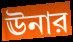
ঊনার